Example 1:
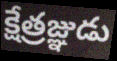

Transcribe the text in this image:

క్షేత్రజ్ఞుడు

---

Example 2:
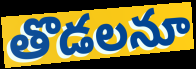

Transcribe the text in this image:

తొడలనూ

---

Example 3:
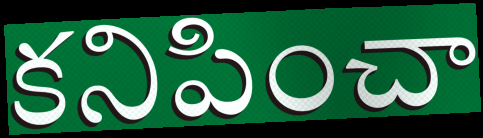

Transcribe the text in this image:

కనిపించా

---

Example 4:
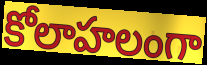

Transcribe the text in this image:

కోలాహలంగా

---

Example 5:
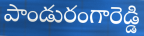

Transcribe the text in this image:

పాండురంగారెడ్డి